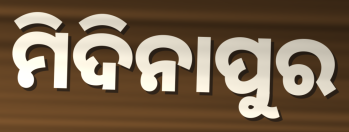
ମିଦିନାପୁର